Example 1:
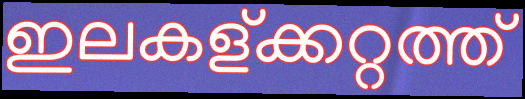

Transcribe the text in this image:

ഇലകള്ക്കറ്റത്ത്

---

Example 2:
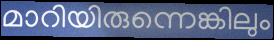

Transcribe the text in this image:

മാറിയിരുന്നെങ്കിലും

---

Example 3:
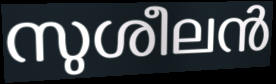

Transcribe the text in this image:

സുശീലൻ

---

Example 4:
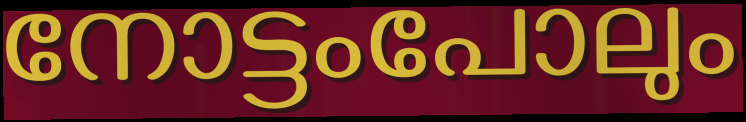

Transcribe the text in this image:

നോട്ടംപോലും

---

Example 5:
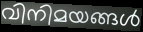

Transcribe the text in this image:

വിനിമയങ്ങൾ